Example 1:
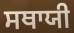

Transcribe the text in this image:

ਸਥਾਯੀ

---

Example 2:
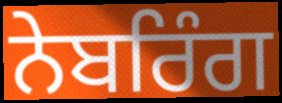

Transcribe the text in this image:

ਨੇਬਰਿੰਗ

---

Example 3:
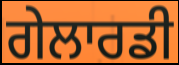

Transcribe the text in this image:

ਗੇਲਾਰਡੀ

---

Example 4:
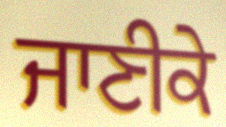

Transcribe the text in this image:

ਜਾਣੀਕੇ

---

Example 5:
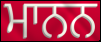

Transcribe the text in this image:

ਮਾਨਨ